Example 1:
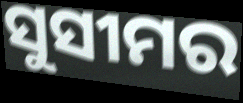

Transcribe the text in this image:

ସୁସୀମର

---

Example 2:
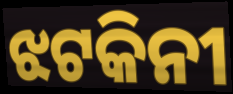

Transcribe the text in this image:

ଝଟକିନୀ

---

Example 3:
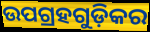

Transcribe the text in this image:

ଉପଗ୍ରହଗୁଡ଼ିକର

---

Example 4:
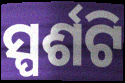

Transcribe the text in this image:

ସ୍ପର୍ଶଟି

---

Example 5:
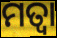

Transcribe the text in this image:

ମତ୍ୱା